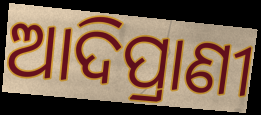
ଆଦିପ୍ରାଣୀ